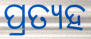
ପ୍ରତ୍ଯହ